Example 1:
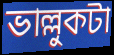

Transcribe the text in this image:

ভাল্লুকটা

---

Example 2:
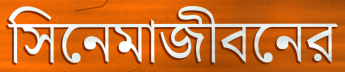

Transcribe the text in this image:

সিনেমাজীবনের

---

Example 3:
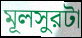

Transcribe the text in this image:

মূলসুরটা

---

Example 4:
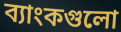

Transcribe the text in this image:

ব্যাংকগুলো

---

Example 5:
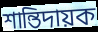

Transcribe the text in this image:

শান্তিদায়ক